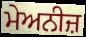
ਮੇਅਨੀਜ਼